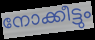
നോക്കീട്ടും